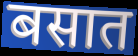
बसात